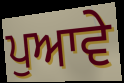
ਪੁਆਵੇ